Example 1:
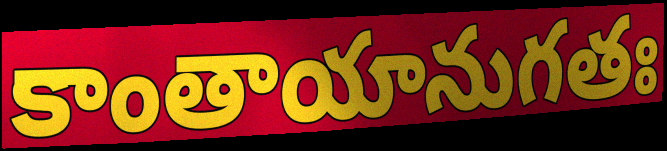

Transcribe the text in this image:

కాంతాయానుగతః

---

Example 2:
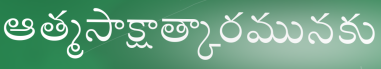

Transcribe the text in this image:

ఆత్మసాక్షాత్కారమునకు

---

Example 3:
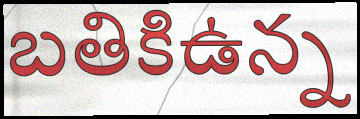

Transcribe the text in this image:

బతికిఉన్న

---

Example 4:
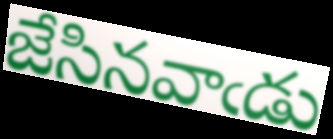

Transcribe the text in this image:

జేసినవాఁడు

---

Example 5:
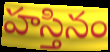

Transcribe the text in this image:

హస్తినం